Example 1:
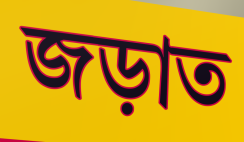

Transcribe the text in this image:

জড়াত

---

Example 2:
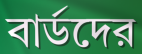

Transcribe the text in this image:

বার্ডদের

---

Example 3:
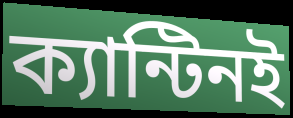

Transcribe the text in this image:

ক্যান্টিনই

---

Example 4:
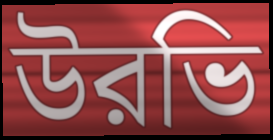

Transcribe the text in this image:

উরভি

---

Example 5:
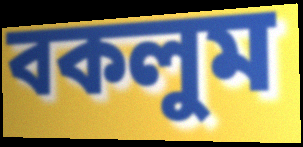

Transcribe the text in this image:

বকলুম